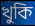
খুকি